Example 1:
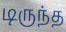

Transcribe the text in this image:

டிருந்த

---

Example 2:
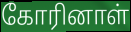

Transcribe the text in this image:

கோரினாள்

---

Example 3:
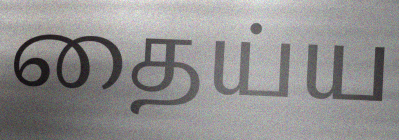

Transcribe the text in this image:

தைய்ய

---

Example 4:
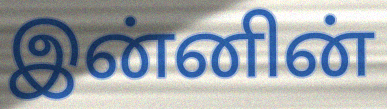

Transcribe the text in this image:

இன்னின்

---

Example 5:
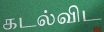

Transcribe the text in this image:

கடல்விட